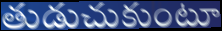
తుడుచుకుంటూ